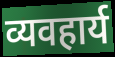
व्यवहार्य